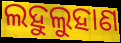
ଲହୁଲୁହାଣ